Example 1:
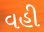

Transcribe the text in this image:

વહી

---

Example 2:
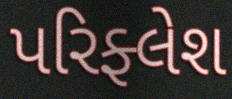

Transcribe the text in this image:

પરિફ્લેશ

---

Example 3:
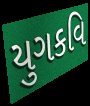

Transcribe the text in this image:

યુગકવિ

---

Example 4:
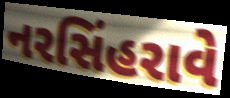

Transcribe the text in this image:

નરસિંહરાવે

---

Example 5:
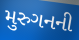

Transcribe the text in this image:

મુરુગનની